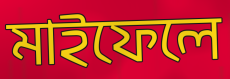
মাইফেলে